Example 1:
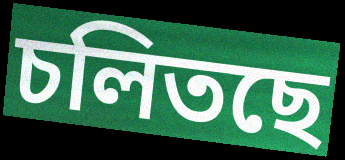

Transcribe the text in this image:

চলিতছে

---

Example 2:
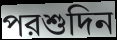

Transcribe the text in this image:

পরশুদিন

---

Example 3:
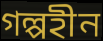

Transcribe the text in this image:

গল্পহীন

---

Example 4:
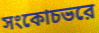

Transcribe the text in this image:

সংকোচভরে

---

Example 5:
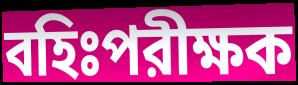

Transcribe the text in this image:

বহিঃপরীক্ষক